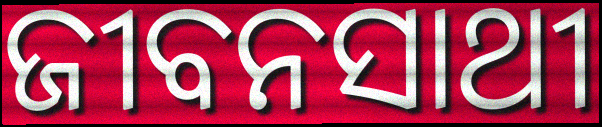
ଜୀବନସାଥୀ